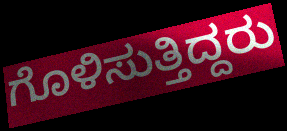
ಗೊಳಿಸುತ್ತಿದ್ದರು